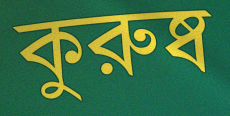
কুরুষ্ব